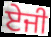
ਏਜੀ